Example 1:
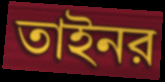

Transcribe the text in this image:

তাইনর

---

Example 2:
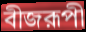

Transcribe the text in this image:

বীজরূপী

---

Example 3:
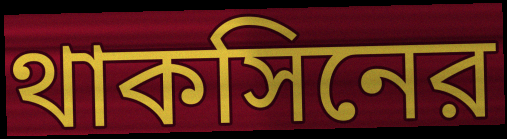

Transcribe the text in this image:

থাকসিনের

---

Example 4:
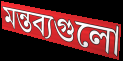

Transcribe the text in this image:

মন্তব্যগুলো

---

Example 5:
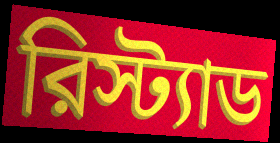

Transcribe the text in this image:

রিস্ট্যাড